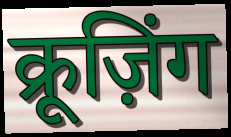
क्रूज़िंग